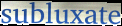
subluxate